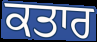
ਕਤਾਰ